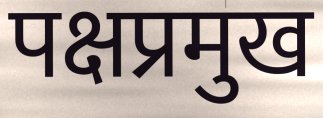
पक्षप्रमुख